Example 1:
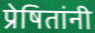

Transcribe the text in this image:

प्रेषितांनी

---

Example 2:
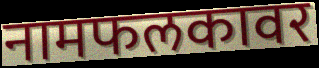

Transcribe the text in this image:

नामफलकावर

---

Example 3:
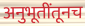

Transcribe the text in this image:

अनुभूतींतूनच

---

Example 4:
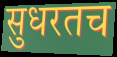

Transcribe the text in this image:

सुधरतच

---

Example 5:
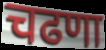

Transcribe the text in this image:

चढणा